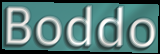
Boddo